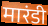
मारंडी